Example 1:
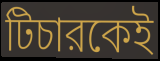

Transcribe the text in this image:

টিচারকেই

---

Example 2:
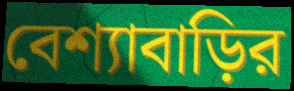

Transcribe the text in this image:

বেশ্যাবাড়ির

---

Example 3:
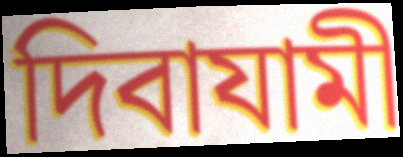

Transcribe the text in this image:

দিবাযামী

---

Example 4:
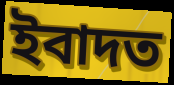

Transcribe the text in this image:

ইবাদত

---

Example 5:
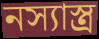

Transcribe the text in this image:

নস্যাস্ত্র